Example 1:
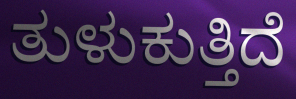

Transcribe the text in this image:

ತುಳುಕುತ್ತಿದೆ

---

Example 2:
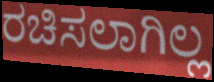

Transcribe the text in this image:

ರಚಿಸಲಾಗಿಲ್ಲ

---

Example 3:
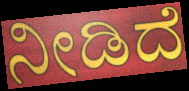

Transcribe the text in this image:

ನೀಡಿದೆ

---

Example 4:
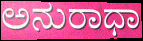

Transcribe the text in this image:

ಅನುರಾಧಾ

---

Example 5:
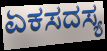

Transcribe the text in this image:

ಏಕಸದಸ್ಯ